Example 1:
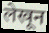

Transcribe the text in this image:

लेखून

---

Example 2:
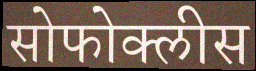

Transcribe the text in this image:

सोफोक्लीस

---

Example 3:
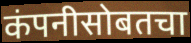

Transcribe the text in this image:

कंपनीसोबतचा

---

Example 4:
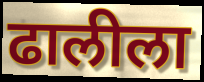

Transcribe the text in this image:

ढालीला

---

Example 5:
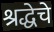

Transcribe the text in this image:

श्रद्धेचे